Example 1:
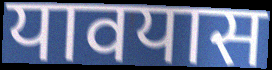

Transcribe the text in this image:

यावयास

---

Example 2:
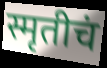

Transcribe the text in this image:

स्मृतीचं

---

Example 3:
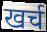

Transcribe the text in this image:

खर्च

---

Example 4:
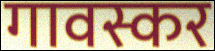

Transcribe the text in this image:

गावस्कर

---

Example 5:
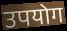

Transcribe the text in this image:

उपयोग